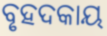
ବୃହଦକାୟ